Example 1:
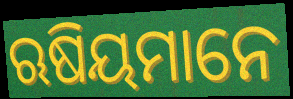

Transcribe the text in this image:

ଋଷିୟମାନେ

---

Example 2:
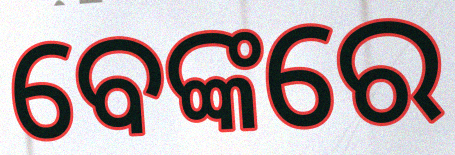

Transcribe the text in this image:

ବେଙ୍କରେ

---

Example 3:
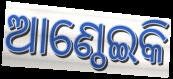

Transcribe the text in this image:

ଆଣ୍ଠେଇକି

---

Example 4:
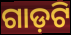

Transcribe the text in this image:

ଗାଡ଼ଟି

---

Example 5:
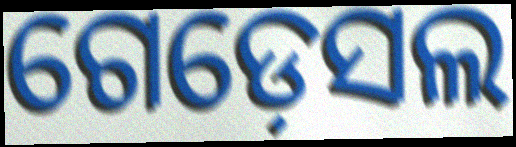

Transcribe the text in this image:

ଗେଡ଼େସଲ